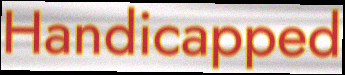
Handicapped